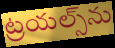
ట్రయల్స్‌ను